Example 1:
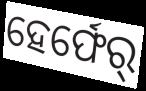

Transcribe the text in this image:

ହେର୍ଫେର୍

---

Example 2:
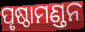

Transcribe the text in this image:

ପୃଷ୍ଠାମଣ୍ଡନ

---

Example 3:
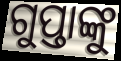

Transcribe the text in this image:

ଗୁପ୍ତାଙ୍କୁ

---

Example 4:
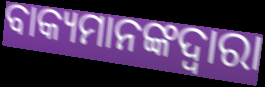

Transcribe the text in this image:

ବାକ୍ୟମାନଙ୍କଦ୍ୱାରା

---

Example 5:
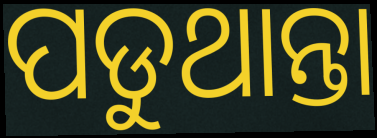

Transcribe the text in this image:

ପଡୁଥାନ୍ତା